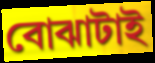
বোঝাটাই